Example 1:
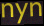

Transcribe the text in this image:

nyn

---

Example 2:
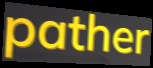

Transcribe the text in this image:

pather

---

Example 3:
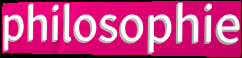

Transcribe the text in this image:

philosophie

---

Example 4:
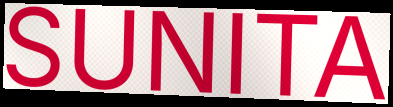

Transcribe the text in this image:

SUNITA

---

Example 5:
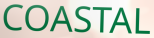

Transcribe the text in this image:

COASTAL